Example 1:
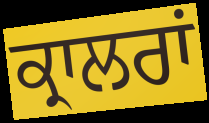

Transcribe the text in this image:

ਕ੍ਰਾਲਰਾਂ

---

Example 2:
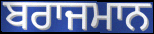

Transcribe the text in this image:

ਬਰਾਜਮਾਨ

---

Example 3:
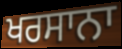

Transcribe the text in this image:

ਖਰਸਾਨਾ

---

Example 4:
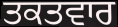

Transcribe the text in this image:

ਤਕਤਵਾਰ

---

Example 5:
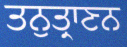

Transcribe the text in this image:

ਤਨੁਤ੍ਰਾਣਨ